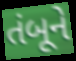
તંબૂને